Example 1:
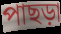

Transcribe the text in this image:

পাছড়া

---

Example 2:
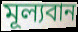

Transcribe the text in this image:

মূল্যবান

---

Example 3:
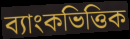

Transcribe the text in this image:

ব্যাংকভিত্তিক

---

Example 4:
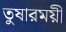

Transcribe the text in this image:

তুষারময়ী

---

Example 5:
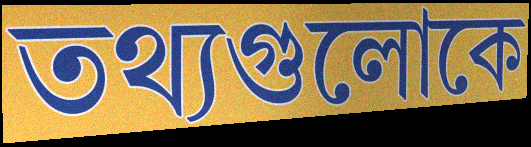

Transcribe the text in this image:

তথ্যগুলোকে